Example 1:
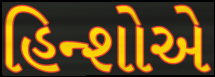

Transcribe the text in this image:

હિન્શોએ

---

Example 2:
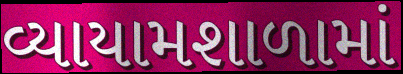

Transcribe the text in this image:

વ્યાયામશાળામાં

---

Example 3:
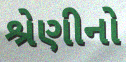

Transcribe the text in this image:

શ્રેણીનો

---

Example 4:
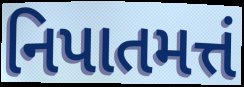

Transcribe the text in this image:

નિપાતમત્તં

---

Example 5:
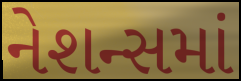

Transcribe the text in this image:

નેશન્સમાં